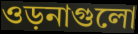
ওড়নাগুলো